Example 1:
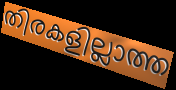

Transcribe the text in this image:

തിരകളില്ലാത്ത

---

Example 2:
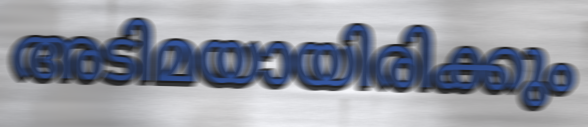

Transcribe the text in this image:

അടിമയായിരിക്കും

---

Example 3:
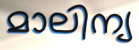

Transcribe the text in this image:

മാലിന്യ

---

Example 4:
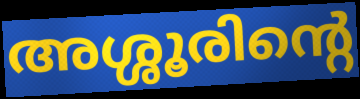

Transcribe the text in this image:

അശ്ശൂരിന്റെ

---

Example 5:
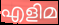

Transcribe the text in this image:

എളിമ